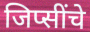
जिप्सींचे